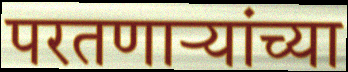
परतणाऱ्यांच्या